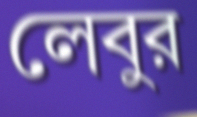
লেবুর